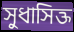
সুধাসিক্ত